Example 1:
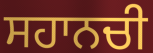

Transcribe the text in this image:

ਸਹਾਨਚੀ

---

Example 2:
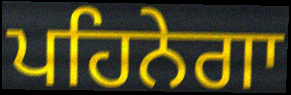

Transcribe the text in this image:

ਪਹਿਨੇਗਾ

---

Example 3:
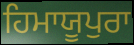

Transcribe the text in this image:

ਹਿਮਾਯੂਪੁਰਾ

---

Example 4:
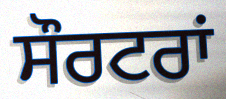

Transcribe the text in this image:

ਸੌਰਟਰਾਂ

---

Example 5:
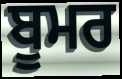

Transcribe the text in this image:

ਬੂਮਰ